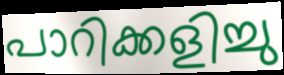
പാറിക്കളിച്ചു